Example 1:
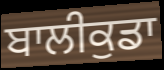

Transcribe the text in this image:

ਬਾਲੀਕੁਡਾ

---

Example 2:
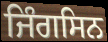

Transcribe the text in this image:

ਜਿੰਗਸਿਨ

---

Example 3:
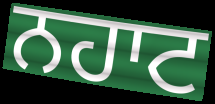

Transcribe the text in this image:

ਨਹਾਟ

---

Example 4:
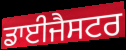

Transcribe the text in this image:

ਡਾਈਜੈਸਟਰ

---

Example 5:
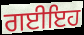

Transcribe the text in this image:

ਗਈਇਹ